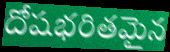
దోషభరితమైన